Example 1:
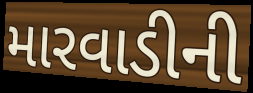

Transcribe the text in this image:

મારવાડીની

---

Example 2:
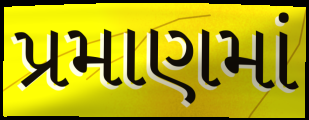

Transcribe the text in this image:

પ્રમાણમાં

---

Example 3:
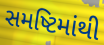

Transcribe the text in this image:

સમષ્ટિમાંથી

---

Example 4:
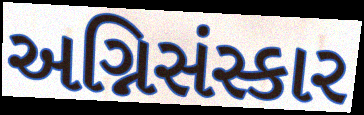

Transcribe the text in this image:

અગ્નિસંસ્કાર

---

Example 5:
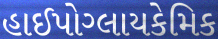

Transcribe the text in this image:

હાઈપોગ્લાયકેમિક